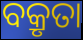
ବକ୍ରୃତା